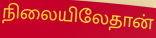
நிலையிலேதான்